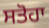
ਸਤੋਹਾ